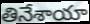
తినేశాయా